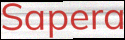
Sapera